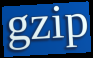
gzip